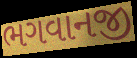
ભગવાનજી